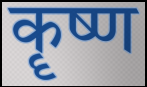
कॄष्ण